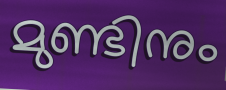
മുണ്ടിനും